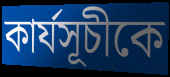
কার্যসূচীকে